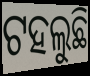
ଟହଲୁଛି